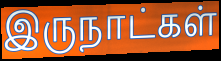
இருநாட்கள்